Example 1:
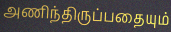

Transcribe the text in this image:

அணிந்திருப்பதையும்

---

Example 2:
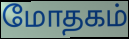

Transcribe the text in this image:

மோதகம்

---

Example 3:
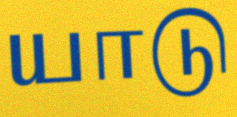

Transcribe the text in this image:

யாடு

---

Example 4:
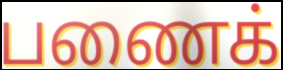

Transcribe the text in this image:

பணைக்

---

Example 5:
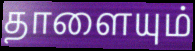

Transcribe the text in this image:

தாளையும்